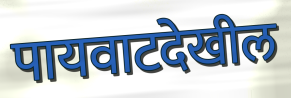
पायवाटदेखील